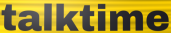
talktime